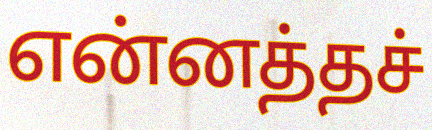
என்னத்தச்